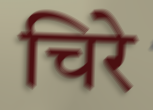
चिरे